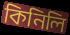
কিনিলি